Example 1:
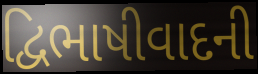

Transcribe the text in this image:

દ્વિભાષીવાદની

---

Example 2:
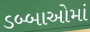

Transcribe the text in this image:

ડબ્બાઓમાં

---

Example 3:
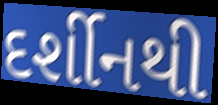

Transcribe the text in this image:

દર્શીનથી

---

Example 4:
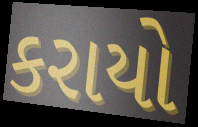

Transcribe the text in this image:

કરાયો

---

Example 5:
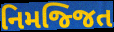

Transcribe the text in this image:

નિમજ્જિત